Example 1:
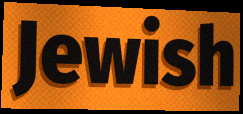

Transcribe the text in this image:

Jewish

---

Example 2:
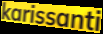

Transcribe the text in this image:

karissanti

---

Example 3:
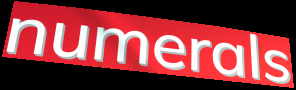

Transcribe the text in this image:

numerals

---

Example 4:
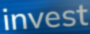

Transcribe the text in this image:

invest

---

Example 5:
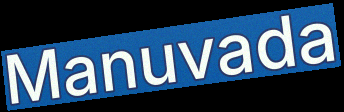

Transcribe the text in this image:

Manuvada